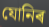
যোনিৰ